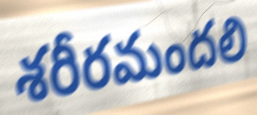
శరీరమందలి